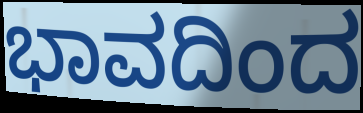
ಭಾವದಿಂದ